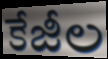
కేజీల